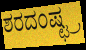
ಶರದಂಷ್ಟ್ರ